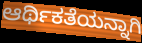
ಆರ್ಥಿಕತೆಯನ್ನಾಗಿ